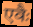
एवैः